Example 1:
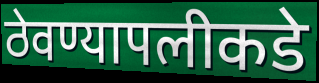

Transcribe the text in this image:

ठेवण्यापलीकडे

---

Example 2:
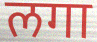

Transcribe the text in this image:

लगा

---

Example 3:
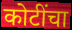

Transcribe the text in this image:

कोटींचा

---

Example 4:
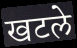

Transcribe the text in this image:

खटले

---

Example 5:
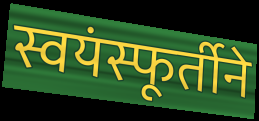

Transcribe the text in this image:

स्वयंस्फूर्तीने